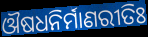
ଔଷଧନିର୍ମାଣରୀତିଃ